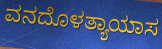
ವನದೊಳತ್ಯಾಯಾಸ